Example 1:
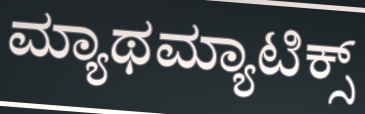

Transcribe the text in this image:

ಮ್ಯಾಥಮ್ಯಾಟಿಕ್ಸ್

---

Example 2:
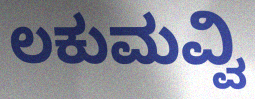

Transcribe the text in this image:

ಲಕುಮವ್ವಿ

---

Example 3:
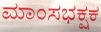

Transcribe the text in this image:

ಮಾಂಸಭಕ್ಷಕ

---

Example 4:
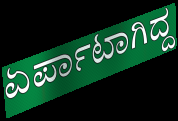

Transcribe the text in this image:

ಏರ್ಪಾಟಾಗಿದ್ದ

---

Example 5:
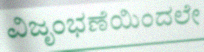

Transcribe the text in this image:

ವಿಜೃಂಭಣೆಯಿಂದಲೇ